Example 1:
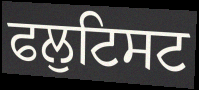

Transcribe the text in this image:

ਫਲੁਟਿਸਟ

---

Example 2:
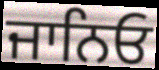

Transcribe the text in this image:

ਜਾਨਿਓ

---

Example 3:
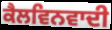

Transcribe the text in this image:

ਕੈਲਵਿਨਵਾਦੀ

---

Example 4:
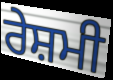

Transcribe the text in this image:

ਰੇਸ਼ਮੀ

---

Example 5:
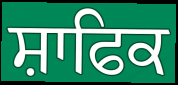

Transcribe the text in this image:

ਸ਼ਾਫਿਕ